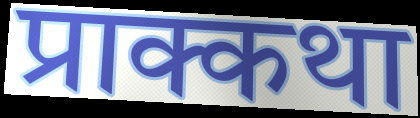
प्राक्कथा